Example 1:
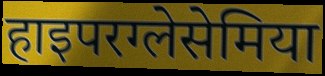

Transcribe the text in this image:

हाइपरग्लेसेमिया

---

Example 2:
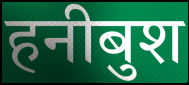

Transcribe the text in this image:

हनीबुश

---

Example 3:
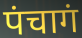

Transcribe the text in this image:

पंचागं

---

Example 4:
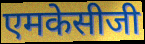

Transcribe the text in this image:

एमकेसीजी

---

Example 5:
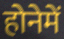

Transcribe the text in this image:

होनेमें